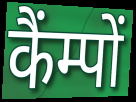
कैंम्पों